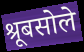
श्रूबसोले